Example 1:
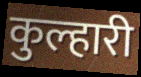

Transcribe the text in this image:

कुल्हारी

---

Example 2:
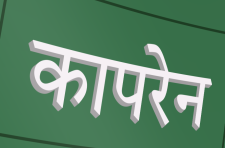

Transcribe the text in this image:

कापरेन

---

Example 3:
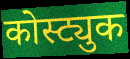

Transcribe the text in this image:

कोस्ट्युक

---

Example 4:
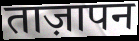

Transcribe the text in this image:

ताज़ापन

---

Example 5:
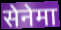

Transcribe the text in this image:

सेनेमा